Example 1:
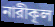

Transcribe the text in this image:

নারীকূল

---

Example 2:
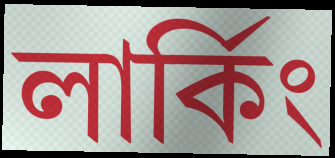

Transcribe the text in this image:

লার্কিং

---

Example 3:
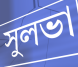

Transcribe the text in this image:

সুলভা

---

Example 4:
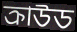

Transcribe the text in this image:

ক্রাউড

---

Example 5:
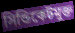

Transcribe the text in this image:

সিন্ডিকেটমুক্ত